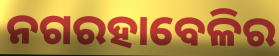
ନଗରହାବେଳିର